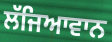
ਲੱਜਿਆਵਾਨ